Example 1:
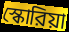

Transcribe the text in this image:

স্কোরিয়া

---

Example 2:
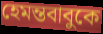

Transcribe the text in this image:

হেমন্তবাবুকে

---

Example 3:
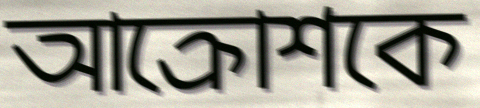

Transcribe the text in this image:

আক্রোশকে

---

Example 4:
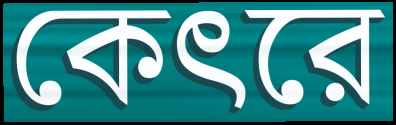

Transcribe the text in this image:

কেৎরে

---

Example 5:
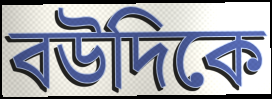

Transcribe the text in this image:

বউদিকে